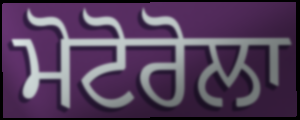
ਮੋਟੋਰੋਲਾ